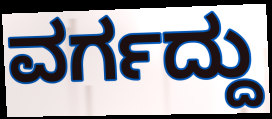
ವರ್ಗದ್ದು